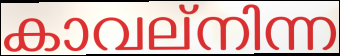
കാവല്നിന്ന